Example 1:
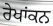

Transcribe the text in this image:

ਰੇਖਾਂਕਨ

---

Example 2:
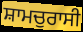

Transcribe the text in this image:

ਸ਼ਾਮਚੁਰਾਸੀ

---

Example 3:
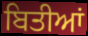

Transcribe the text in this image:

ਬਿਤੀਆਂ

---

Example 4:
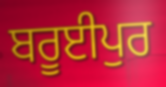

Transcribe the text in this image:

ਬਰੂਈਪੁਰ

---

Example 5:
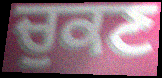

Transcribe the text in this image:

ਚੁਕਣ